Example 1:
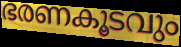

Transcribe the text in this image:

ഭരണകൂടവും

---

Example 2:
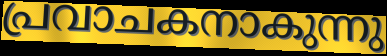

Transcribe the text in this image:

പ്രവാചകനാകുന്നു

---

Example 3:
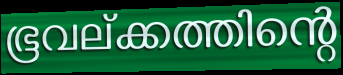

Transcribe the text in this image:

ഭൂവല്ക്കത്തിന്റെ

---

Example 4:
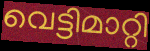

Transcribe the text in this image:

വെട്ടിമാറ്റി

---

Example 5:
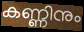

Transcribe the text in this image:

കണ്ണിനും